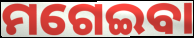
ମଗେଇବା